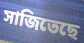
সাজিতেছে